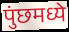
पुंछमध्ये